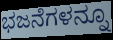
ಭಜನೆಗಳನ್ನೂ